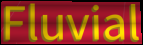
Fluvial